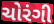
ચોરંગી